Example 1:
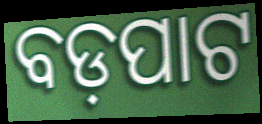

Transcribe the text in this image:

ବଡ଼ପାଟ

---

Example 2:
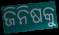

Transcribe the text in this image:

ଜିନିଷକୁ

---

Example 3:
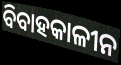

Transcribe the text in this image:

ବିବାହକାଳୀନ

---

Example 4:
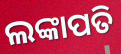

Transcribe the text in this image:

ଲଙ୍କାପତି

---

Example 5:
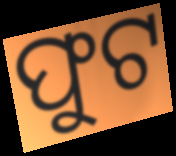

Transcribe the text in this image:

ଫୁଟ